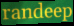
randeep